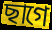
ছাগে